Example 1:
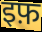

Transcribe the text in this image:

इफ़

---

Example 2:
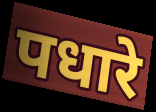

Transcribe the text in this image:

पधारे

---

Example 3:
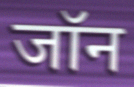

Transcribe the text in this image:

जॉन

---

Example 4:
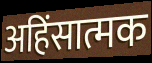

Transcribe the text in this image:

अहिंसात्मक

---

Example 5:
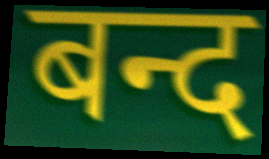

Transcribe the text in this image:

बन्द